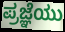
ಪ್ರಜ್ಞೆಯು